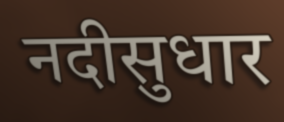
नदीसुधार